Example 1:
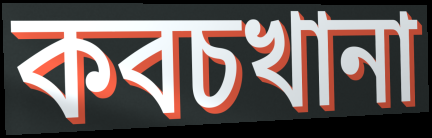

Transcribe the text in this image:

কবচখানা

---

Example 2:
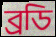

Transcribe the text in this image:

ব্রডি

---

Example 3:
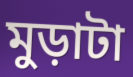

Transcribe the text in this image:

মুড়াটা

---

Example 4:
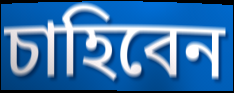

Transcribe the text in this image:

চাহিবেন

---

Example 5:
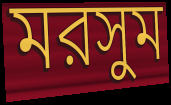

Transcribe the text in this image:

মরসুম